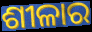
ଶୀଳାର